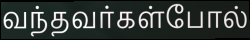
வந்தவர்கள்போல்